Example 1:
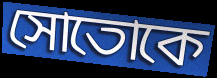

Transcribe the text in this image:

সোতোকে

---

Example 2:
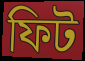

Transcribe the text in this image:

ফিট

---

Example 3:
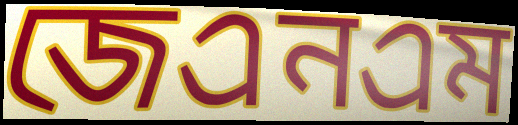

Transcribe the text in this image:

জেএনএম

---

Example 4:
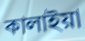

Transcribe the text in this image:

কালাইয়া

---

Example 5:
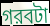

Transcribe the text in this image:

গরবটা